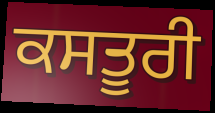
ਕਸਤੂਰੀ